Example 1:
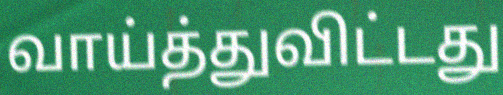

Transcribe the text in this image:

வாய்த்துவிட்டது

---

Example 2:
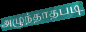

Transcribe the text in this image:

அழுந்தாதபடி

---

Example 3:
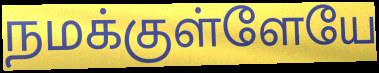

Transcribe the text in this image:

நமக்குள்ளேயே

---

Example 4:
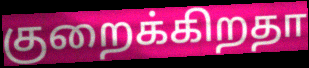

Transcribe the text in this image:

குறைக்கிறதா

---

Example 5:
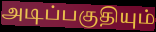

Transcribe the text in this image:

அடிப்பகுதியும்